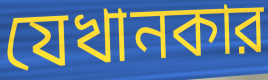
যেখানকার